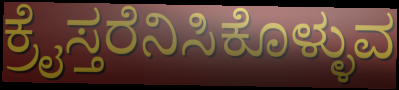
ಕ್ರೈಸ್ತರೆನಿಸಿಕೊಳ್ಳುವ